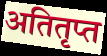
अतितृप्त